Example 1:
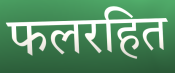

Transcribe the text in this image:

फलरहित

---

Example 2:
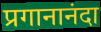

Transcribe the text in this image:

प्रगानानंदा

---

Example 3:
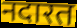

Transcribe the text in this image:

नदारत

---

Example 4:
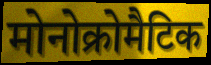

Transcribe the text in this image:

मोनोक्रोमैटिक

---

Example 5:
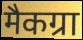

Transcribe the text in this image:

मैकग्रा